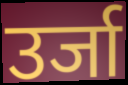
उर्जा